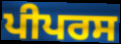
ਪੀਪਰਸ